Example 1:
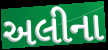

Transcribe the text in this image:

અલીના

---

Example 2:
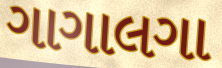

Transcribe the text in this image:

ગાગાલગા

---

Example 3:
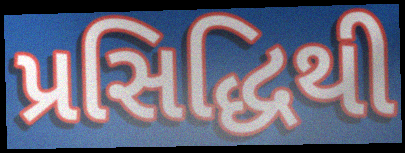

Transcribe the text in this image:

પ્રસિદ્ધિથી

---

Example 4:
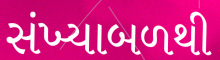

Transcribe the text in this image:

સંખ્યાબળથી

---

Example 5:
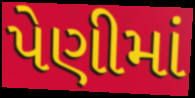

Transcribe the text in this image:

પેણીમાં